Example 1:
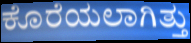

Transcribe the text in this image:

ಕೊರೆಯಲಾಗಿತ್ತು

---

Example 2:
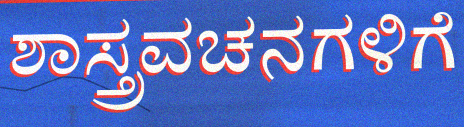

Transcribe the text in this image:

ಶಾಸ್ತ್ರವಚನಗಳಿಗೆ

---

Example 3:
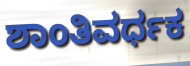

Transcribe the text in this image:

ಶಾಂತಿವರ್ಧಕ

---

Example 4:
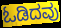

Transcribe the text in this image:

ಓಡಿದವು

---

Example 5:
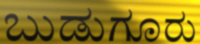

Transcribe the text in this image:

ಬುಡುಗೂರು